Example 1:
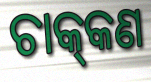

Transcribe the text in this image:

ଚାକ୍‌କଣ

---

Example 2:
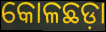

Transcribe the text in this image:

କୋଳଛଡ଼ା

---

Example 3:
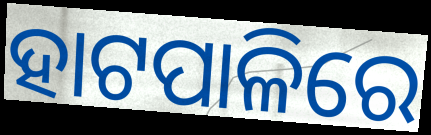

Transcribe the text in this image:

ହାଟପାଳିରେ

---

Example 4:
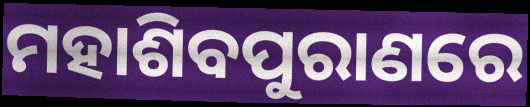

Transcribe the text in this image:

ମହାଶିବପୁରାଣରେ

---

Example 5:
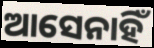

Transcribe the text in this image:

ଆସେନାହିଁ